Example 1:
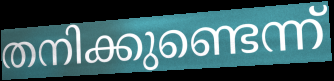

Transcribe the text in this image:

തനിക്കുണ്ടെന്ന്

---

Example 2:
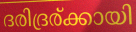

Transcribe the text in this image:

ദരിദ്രര്ക്കായി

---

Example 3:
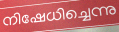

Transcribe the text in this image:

നിഷേധിച്ചെന്നു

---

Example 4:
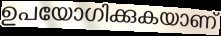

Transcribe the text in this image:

ഉപയോഗിക്കുകയാണ്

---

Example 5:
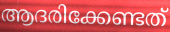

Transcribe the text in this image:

ആദരിക്കേണ്ടത്